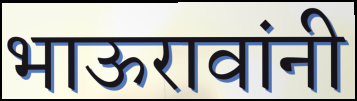
भाऊरावांनी